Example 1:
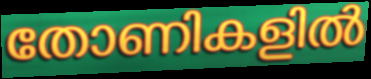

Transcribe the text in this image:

തോണികളിൽ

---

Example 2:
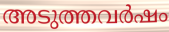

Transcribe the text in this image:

അടുത്തവർഷം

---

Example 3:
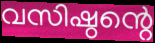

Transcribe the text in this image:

വസിഷ്ഠന്റെ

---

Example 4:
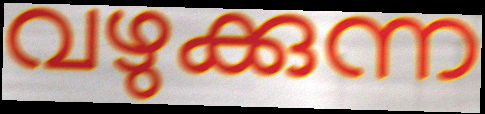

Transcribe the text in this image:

വഴുക്കുന്ന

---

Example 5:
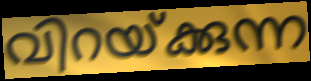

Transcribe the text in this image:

വിറയ്‌ക്കുന്ന